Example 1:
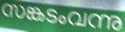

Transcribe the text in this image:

സങ്കടംവന്നു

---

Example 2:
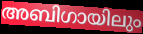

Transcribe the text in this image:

അബിഗായിലും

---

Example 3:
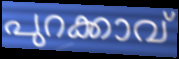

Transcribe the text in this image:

പുറക്കാവ്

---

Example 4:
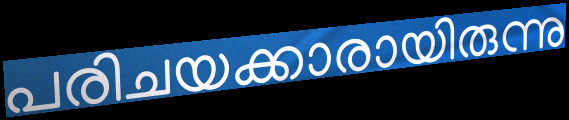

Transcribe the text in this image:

പരിചയക്കാരായിരുന്നു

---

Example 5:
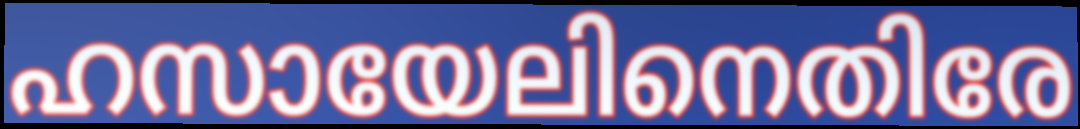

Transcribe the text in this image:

ഹസായേലിനെതിരേ